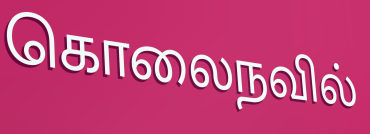
கொலைநவில்